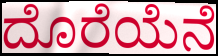
ದೊರೆಯೆನೆ